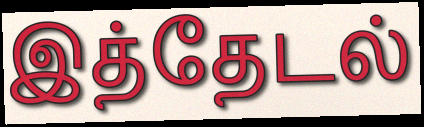
இத்தேடல்